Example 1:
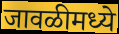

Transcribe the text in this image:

जावळीमध्ये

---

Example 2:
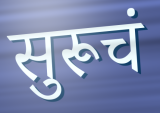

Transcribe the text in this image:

सुरूचं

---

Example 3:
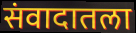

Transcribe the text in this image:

संवादातला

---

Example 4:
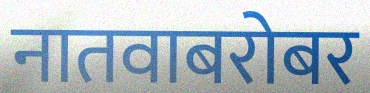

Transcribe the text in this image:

नातवाबरोबर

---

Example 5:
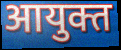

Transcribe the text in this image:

आयुक्‍त